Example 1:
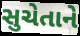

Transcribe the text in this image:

સુચેતાને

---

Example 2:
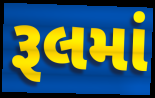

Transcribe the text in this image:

રૂલમાં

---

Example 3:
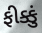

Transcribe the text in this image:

ફીક્કું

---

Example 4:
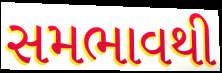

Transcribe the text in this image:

સમભાવથી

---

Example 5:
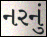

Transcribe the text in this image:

નરનું